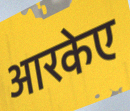
आरकेए